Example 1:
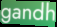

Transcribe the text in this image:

gandh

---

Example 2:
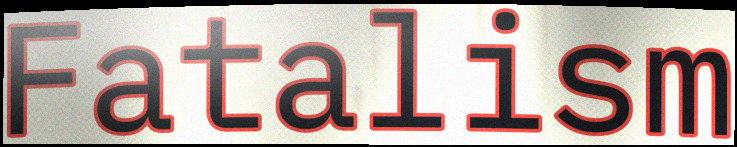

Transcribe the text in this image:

Fatalism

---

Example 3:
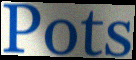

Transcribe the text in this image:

Pots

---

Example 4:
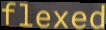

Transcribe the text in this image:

flexed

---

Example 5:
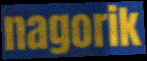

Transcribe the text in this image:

nagorik